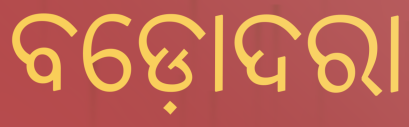
ବଡ଼ୋଦରା